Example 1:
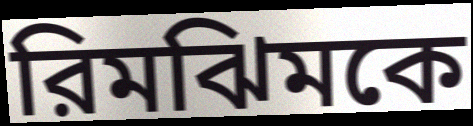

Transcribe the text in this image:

রিমঝিমকে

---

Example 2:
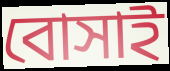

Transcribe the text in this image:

বোসাই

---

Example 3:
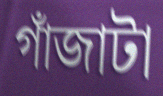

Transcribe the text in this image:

গাঁজাটা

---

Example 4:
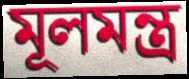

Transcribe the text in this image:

মূলমন্ত্র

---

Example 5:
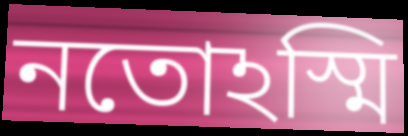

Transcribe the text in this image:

নতোঽস্মি